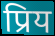
प्रिय